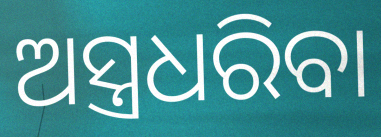
ଅସ୍ତ୍ରଧରିବା